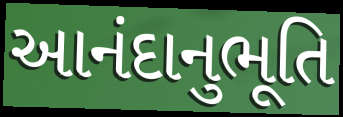
આનંદાનુભૂતિ